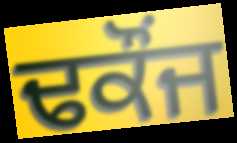
ਢਕੌਂਜ